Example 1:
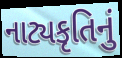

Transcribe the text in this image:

નાટ્યકૃતિનું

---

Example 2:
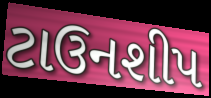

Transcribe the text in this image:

ટાઉનશીપ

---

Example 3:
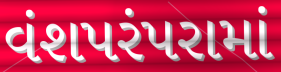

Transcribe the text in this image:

વંશપરંપરામાં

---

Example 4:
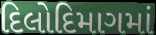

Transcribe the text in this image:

દિલોદિમાગમાં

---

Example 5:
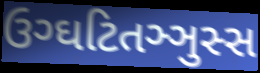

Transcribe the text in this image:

ઉગ્ઘટિતઞ્ઞુસ્સ